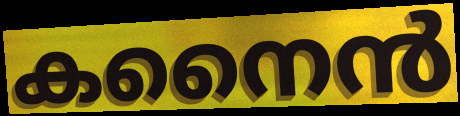
കനൈൻ